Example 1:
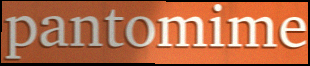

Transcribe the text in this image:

pantomime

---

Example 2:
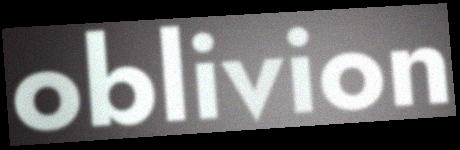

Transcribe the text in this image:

oblivion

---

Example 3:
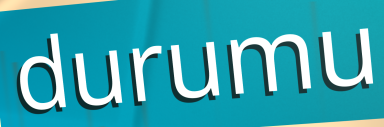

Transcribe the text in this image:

durumu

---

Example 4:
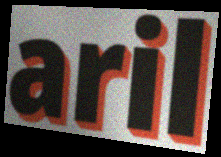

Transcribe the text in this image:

aril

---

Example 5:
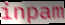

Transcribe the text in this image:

inpam